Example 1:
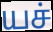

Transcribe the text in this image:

யச்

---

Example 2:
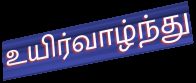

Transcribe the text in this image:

உயிர்வாழ்ந்து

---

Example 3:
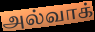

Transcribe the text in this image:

அல்வாக்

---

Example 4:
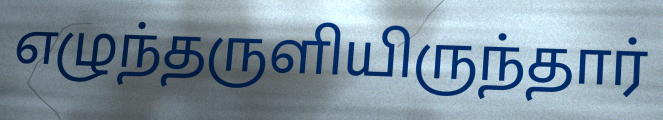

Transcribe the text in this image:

எழுந்தருளியிருந்தார்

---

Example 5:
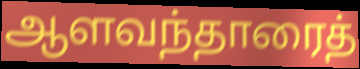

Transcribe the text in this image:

ஆளவந்தாரைத்